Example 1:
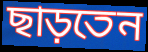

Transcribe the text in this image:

ছাড়তেন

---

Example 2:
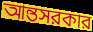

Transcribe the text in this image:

আন্তসরকার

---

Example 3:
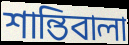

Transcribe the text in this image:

শান্তিবালা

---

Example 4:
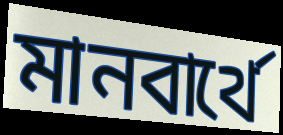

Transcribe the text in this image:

মানবার্থে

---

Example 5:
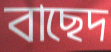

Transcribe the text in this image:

বাছেদ